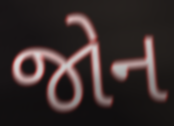
જોન